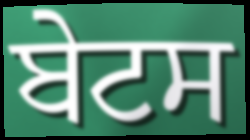
ਬੇਟਸ